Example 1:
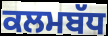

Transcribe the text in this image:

ਕਲਮਬੱਧ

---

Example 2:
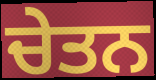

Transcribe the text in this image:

ਚੇਤਨ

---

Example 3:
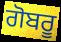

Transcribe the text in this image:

ਗੋਬਰੂ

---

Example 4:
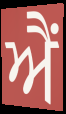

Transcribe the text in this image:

ਐੰ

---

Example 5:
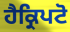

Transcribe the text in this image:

ਹੈਕ੍ਰਿਪਟੋ